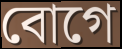
বোগে